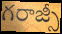
గరాజ్సీ